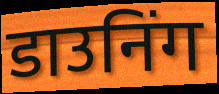
डाउनिंग